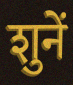
शुनें